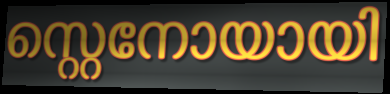
സ്റ്റെനോയായി